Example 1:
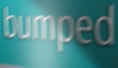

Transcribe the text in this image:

bumped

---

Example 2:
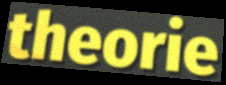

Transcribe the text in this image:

theorie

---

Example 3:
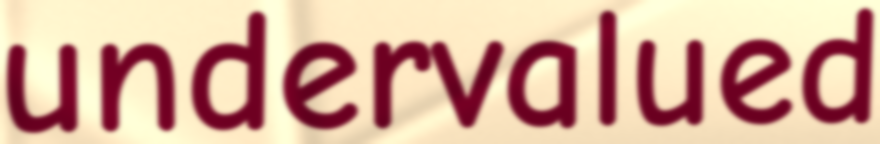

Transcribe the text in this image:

undervalued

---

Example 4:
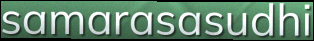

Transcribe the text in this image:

samarasasudhi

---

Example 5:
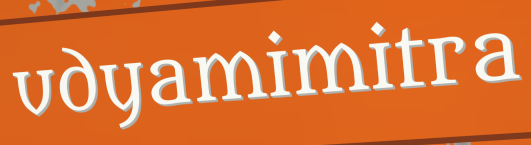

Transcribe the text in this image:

udyamimitra